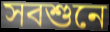
সবশুনে